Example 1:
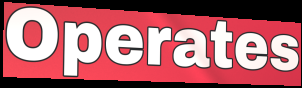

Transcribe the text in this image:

Operates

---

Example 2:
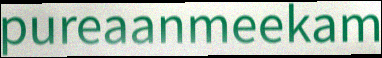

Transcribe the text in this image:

pureaanmeekam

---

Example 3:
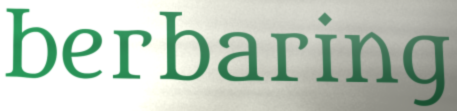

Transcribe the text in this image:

berbaring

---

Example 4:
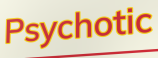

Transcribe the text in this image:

Psychotic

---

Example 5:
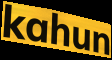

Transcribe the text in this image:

kahun